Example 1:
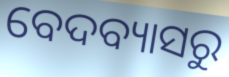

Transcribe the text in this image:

ବେଦବ୍ୟାସରୁ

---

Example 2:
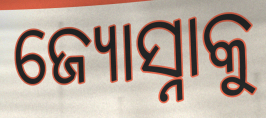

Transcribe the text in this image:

ଜ୍ୟୋସ୍ନାକୁ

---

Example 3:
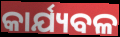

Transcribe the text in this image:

କାର୍ଯ୍ୟବଳ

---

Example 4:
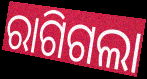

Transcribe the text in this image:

ରାଗିଗଲା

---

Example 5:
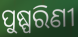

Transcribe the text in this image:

ପୁଷ୍ପରିଣୀ